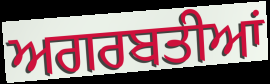
ਅਗਰਬਤੀਆਂ